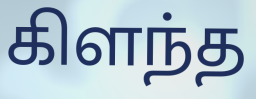
கிளந்த